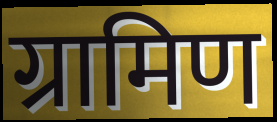
ग्रामिण